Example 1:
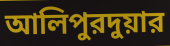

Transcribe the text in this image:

আলিপুরদুয়ার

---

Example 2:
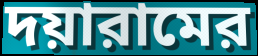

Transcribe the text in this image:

দয়ারামের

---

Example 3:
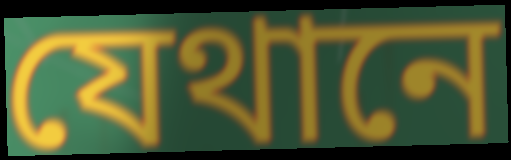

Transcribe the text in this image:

যেথানে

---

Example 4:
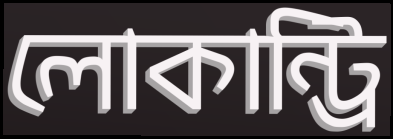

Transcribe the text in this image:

লোকান্ট্রি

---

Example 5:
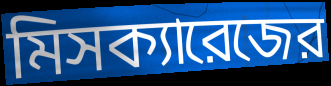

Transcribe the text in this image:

মিসক্যারেজের